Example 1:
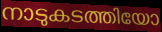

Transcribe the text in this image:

നാടുകടത്തിയോ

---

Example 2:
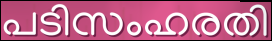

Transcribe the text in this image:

പടിസംഹരതി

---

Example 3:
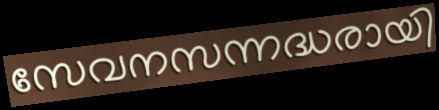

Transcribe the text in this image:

സേവനസന്നദ്ധരായി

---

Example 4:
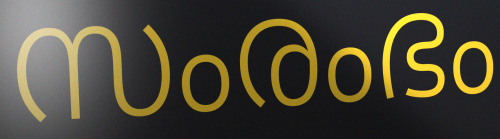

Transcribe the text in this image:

സംരംഭം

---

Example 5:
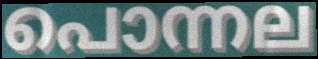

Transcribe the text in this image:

പൊന്നല